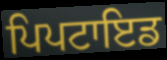
ਪਿਪਟਾਇਡ